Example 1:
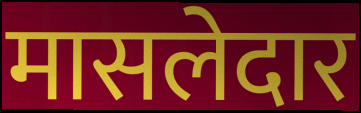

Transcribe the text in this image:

मासलेदार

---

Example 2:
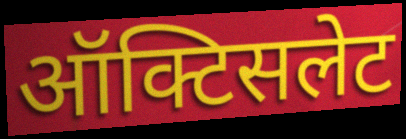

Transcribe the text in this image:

ऑक्टिसलेट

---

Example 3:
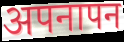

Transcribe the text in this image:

अपनापन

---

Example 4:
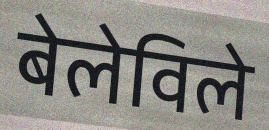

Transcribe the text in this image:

बेलेविले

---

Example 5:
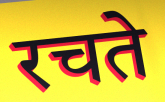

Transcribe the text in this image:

रचते